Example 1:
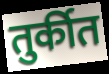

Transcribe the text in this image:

तुर्कीत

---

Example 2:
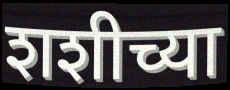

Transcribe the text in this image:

शशीच्या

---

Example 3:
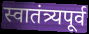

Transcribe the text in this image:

स्वातंत्र्यपूर्व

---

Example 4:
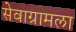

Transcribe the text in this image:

सेवाग्रामला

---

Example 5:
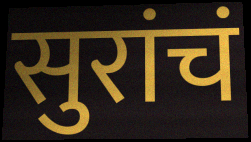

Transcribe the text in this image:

सुरांचं